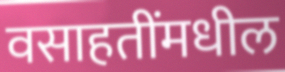
वसाहतींमधील